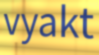
vyakt